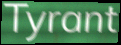
Tyrant